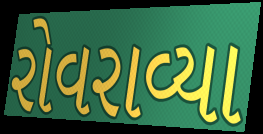
રોવરાવ્યા